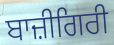
ਬਾਜ਼ੀਗਿਰੀ